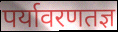
पर्यावरणतज्ञ